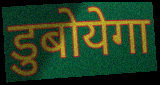
डुबोयेगा